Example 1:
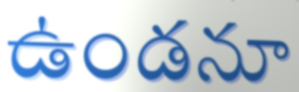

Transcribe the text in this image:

ఉండనూ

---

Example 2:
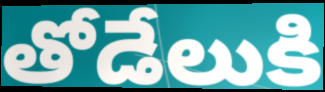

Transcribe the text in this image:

తోడేలుకి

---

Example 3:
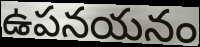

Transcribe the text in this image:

ఉపనయనం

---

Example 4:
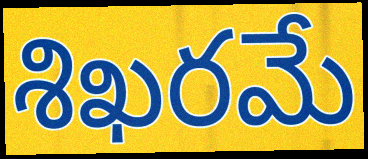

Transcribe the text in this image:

శిఖరమే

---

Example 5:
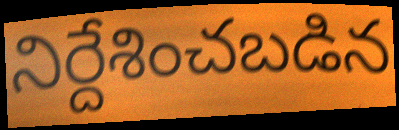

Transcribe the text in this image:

నిర్దేశించబడిన